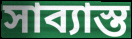
সাব্যাস্ত